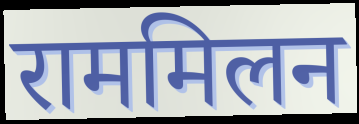
राममिलन